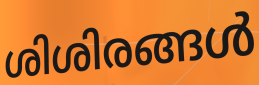
ശിശിരങ്ങൾ